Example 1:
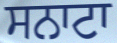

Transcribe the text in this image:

ਸਨਾਟਾ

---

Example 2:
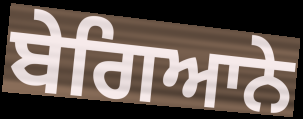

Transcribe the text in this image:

ਬੇਗਿਆਨੇ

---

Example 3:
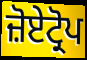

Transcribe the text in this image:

ਜ਼ੋਏਟ੍ਰੋਪ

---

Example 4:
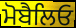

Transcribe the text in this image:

ਮੋਬੈਲਿਓ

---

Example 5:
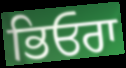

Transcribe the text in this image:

ਭਿਓਰਾ